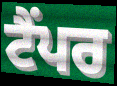
ਟੈਂਪਰ